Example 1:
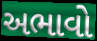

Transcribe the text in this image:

અભાવો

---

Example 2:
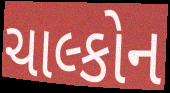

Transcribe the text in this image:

ચાલ્કોન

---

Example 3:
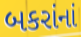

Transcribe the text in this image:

બકરાંનાં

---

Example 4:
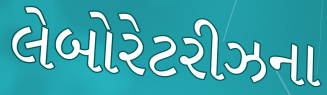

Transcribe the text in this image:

લેબોરેટરીઝના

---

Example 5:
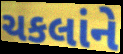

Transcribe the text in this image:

ચકલાંને